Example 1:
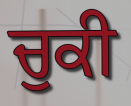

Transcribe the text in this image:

ਚੁਕੀ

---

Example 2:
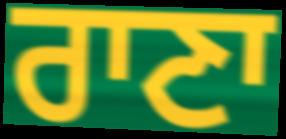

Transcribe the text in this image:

ਰਾਣਾ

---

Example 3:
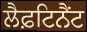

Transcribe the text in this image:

ਲੈਫ਼ਟਿਨੈਂਟ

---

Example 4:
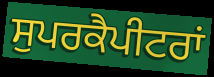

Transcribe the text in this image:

ਸੁਪਰਕੈਪੀਟਰਾਂ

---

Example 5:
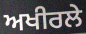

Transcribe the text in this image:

ਅਖੀਰਲੇ